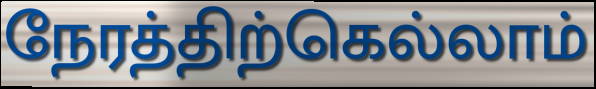
நேரத்திற்கெல்லாம்